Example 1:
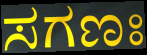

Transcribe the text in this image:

ಸಗಣಃ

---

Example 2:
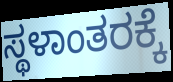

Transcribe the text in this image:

ಸ್ಥಳಾಂತರಕ್ಕೆ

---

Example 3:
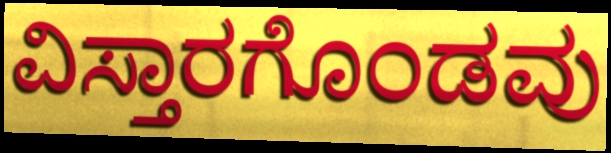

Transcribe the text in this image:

ವಿಸ್ತಾರಗೊಂಡವು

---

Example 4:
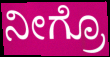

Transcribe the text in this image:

ನೀಗ್ರೊ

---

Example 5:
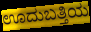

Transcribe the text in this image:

ಊದುಬತ್ತಿಯ